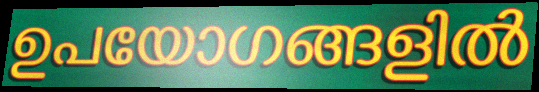
ഉപയോഗങ്ങളിൽ